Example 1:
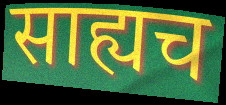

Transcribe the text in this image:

साह्यच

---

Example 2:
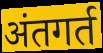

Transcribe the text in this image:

अंतगर्त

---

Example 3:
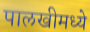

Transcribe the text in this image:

पालखीमध्ये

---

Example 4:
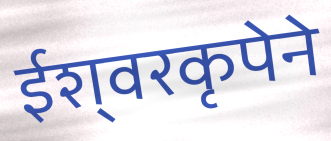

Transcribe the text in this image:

ईश्वरकृपेने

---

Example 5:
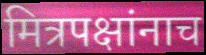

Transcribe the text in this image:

मित्रपक्षांनाच